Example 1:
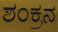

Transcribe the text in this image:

ಶಂಕ್ರನ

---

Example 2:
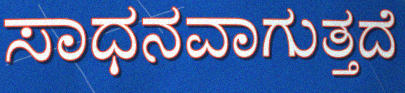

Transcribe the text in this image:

ಸಾಧನವಾಗುತ್ತದೆ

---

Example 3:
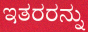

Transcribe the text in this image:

ಇತರರನ್ನು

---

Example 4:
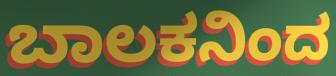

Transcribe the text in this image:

ಬಾಲಕನಿಂದ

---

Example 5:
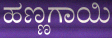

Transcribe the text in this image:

ಹಣ್ಣಗಾಯಿ